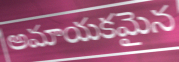
అమాయకమైన